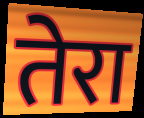
तेरा